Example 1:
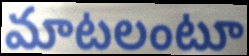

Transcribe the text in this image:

మాటలంటూ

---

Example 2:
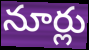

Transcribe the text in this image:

నూర్లు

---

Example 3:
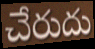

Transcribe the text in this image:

చేరుదు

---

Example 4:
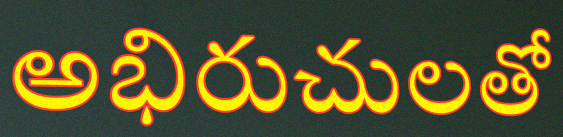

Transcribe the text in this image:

అభిరుచులతో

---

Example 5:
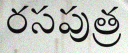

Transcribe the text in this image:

రసపుత్ర